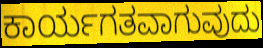
ಕಾರ್ಯಗತವಾಗುವುದು